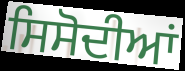
ਸਿਸੋਦੀਆਂ